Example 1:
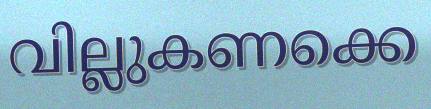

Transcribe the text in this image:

വില്ലുകണക്കെ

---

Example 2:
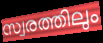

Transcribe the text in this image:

സ്വരത്തിലും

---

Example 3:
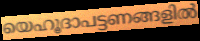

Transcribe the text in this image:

യെഹൂദാപട്ടണങ്ങളിൽ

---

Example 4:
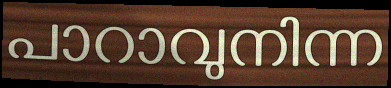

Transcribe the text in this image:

പാറാവുനിന്ന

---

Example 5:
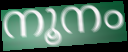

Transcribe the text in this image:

നൂനം